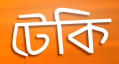
টেকি